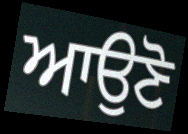
ਆਉਣੋ